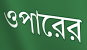
ওপারের